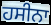
ਹਸੀਨਾ